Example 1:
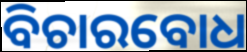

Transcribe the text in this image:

ବିଚାରବୋଧ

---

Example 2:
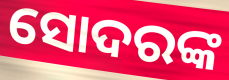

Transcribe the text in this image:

ସୋଦରଙ୍କ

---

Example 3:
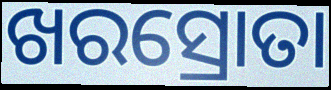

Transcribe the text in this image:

ଖରସ୍ରୋତା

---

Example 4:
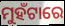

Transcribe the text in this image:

ମୁହଁଟାରେ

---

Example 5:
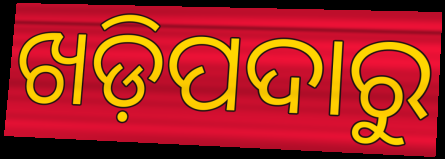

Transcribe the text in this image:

ଖଡ଼ିପଦାରୁ